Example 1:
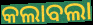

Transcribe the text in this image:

କଲାବଲା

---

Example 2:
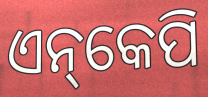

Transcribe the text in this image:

ଏନ୍‌କେପି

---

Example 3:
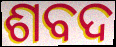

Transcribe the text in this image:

ଶବଦ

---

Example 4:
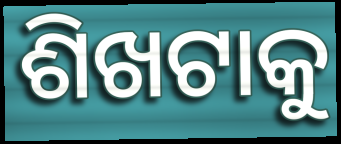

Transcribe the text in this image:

ଶିଖଟାକୁ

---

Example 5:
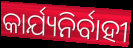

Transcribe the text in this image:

କାର୍ଯ୍ୟନିର୍ବାହୀ